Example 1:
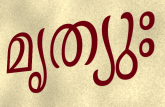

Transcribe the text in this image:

മൃത്യുഃ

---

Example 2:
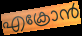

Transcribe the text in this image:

എക്രോൻ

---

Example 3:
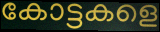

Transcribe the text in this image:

കോട്ടകളെ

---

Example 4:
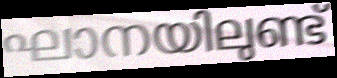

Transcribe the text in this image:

ഘാനയിലുണ്ട്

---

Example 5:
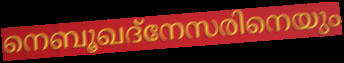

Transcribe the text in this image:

നെബൂഖദ്നേസരിനെയും